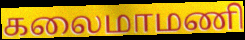
கலைமாமணி